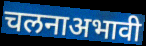
चलनाअभावी